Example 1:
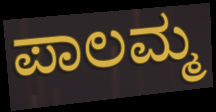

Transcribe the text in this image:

ಪಾಲಮ್ಮ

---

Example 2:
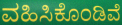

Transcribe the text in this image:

ವಹಿಸಿಕೊಂಡಿವೆ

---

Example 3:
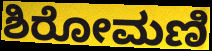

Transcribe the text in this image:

ಶಿರೋಮಣಿ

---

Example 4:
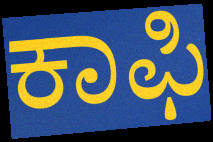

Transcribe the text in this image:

ಕಾಫಿ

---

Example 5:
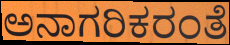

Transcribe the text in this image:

ಅನಾಗರಿಕರಂತೆ